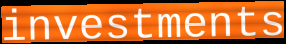
investments